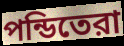
পন্ডিতেরা